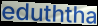
eduththa